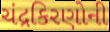
ચંદ્રકિરણોની